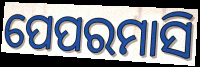
ପେପରମାସି